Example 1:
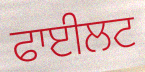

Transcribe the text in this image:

ਫਾਈਲਟ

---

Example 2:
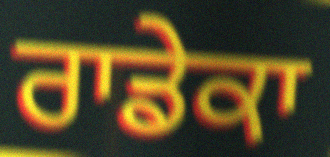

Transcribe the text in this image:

ਰਾਡੇਕਾ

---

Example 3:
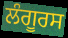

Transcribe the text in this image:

ਲੰਗੂਰਸ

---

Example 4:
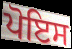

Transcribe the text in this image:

ਪੋਇਸ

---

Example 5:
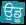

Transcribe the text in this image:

ਉਡੂ